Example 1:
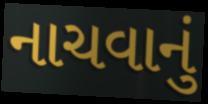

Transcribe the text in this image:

નાચવાનું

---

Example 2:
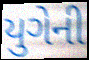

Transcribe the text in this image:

યુગેની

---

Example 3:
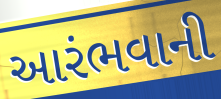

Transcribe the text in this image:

આરંભવાની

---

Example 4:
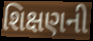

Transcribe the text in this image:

શિક્ષણની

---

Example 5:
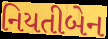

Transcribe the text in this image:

નિયતીબેન